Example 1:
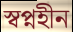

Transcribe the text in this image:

স্বপ্নহীন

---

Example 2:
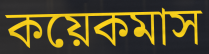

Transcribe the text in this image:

কয়েকমাস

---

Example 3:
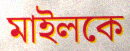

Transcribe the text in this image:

মাইলকে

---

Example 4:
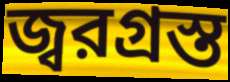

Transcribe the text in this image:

জ্বরগ্রস্ত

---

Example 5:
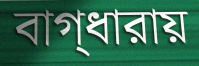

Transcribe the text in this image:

বাগ্‌ধারায়